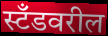
स्टँडवरील